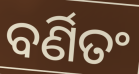
ବର୍ଣିତଂ